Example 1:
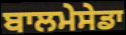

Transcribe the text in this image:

ਬਾਲਮੇਸੇਡਾ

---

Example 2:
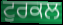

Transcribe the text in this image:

ਟੁਰਕਲ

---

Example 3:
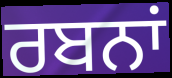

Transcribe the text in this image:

ਰਬਨਾਂ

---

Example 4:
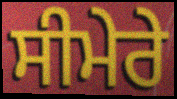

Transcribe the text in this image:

ਸੀਮੇਰੇ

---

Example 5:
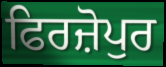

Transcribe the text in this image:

ਫਿਰਜ਼ੋਪੁਰ